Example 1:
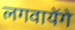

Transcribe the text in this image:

लगवायेंगे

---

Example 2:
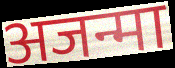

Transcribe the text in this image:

अजन्‍मा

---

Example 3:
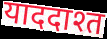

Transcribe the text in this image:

याददाश्त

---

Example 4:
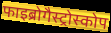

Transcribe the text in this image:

फाइब्रोगैस्ट्रोस्कोप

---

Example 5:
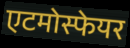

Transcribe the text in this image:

एटमोस्फेयर